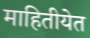
माहितीयेत